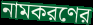
নামকরণের